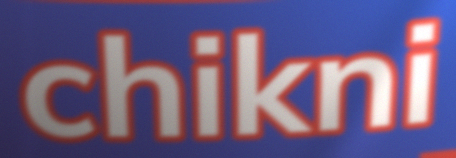
chikni